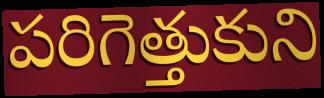
పరిగెత్తుకుని